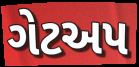
ગેટઅપ